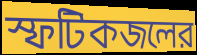
স্ফটিকজলের